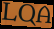
LQA